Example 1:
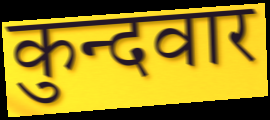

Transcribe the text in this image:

कुन्दवार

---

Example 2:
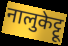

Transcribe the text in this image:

नालुकेट्टू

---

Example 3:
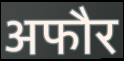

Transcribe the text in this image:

अफौर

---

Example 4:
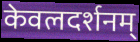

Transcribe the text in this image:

केवलदर्शनम्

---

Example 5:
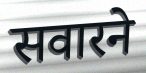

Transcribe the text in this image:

सवारने